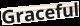
Graceful